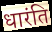
धारंति